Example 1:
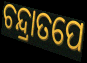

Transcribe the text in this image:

ଚନ୍ଦ୍ରାତପେ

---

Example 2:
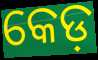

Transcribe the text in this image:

କେଡ଼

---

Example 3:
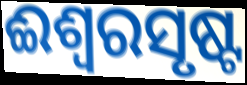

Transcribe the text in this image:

ଈଶ୍ୱରସୃଷ୍ଟ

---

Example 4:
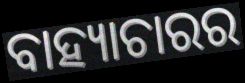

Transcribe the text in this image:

ବାହ୍ୟାଚାରର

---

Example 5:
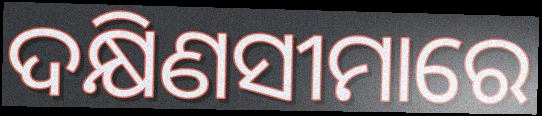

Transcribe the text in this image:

ଦକ୍ଷିଣସୀମାରେ